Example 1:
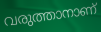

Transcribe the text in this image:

വരുത്താനാണ്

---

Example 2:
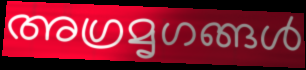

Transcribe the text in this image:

അഗ്രമൃഗങ്ങൾ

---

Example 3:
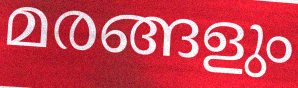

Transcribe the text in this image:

മരങ്ങളും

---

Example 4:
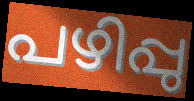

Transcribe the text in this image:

പഴിപ്പു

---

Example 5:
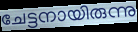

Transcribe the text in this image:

ചേട്ടനായിരുന്നു